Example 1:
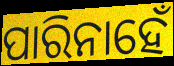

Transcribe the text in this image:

ପାରିନାହେଁ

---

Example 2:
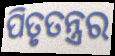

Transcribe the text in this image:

ପିତୃତନ୍ତ୍ରର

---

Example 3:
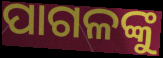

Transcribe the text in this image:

ପାଗଳଙ୍କୁ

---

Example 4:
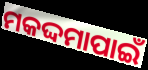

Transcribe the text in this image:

ମକଦ୍ଦମାପାଇଁ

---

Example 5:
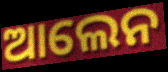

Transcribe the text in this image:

ଆଲେନ